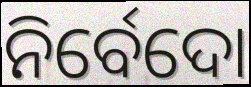
ନିର୍ବେଦୋ